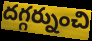
దగ్గర్నుంచి